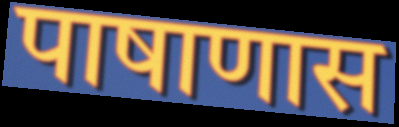
पाषाणास